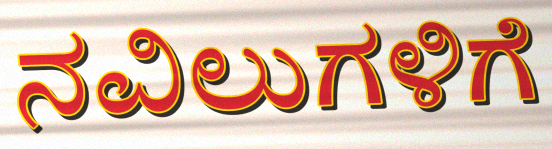
ನವಿಲುಗಳಿಗೆ